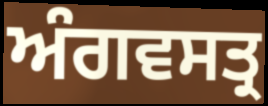
ਅੰਗਵਸਤ੍ਰ